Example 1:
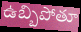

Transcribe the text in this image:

ఉబ్బిపోతూ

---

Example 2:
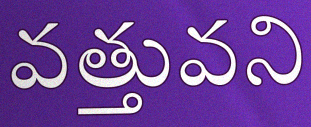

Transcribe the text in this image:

వత్తువని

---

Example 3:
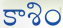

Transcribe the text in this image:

కాశిం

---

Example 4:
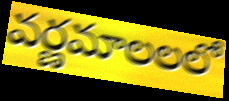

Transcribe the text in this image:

వర్ణమాలలలో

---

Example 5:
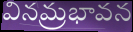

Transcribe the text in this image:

వినమ్రభావన